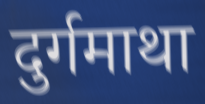
दुर्गमाथा